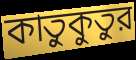
কাতুকুতুর